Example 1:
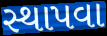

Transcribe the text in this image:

સ્થાપવા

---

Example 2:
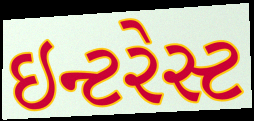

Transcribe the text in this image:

ઇન્ટરેસ્ટ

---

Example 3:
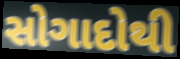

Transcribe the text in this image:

સોગાદોથી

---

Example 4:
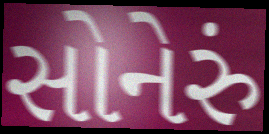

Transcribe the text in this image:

સોનેરું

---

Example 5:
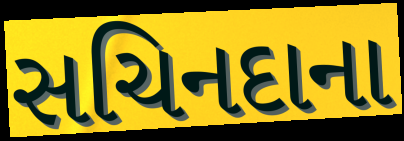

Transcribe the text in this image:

સચિનદાના